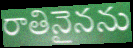
రాతినైనను